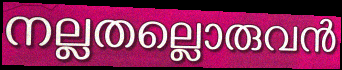
നല്ലതല്ലൊരുവൻ